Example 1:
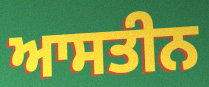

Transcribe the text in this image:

ਆਸਤੀਨ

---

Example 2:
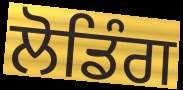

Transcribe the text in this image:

ਲੋਡਿੰਗ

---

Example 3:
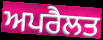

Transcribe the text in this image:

ਅਪਰੈਲਤ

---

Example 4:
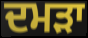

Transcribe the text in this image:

ਦਮੜਾ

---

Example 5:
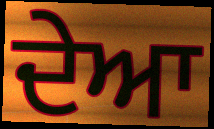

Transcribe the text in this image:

ਦੇਆ